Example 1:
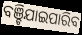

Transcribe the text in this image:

ବଞ୍ଚିଯାଇପାରିବ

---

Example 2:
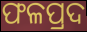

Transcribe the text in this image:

ଫଳପ୍ରଦ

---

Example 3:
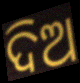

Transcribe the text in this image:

ଦିଅ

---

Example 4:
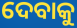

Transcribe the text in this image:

ଦେବାକୁ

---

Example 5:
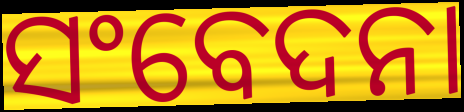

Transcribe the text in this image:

ସଂବେଦନା